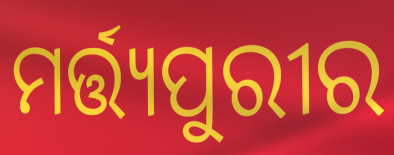
ମର୍ତ୍ତ୍ୟପୁରୀର